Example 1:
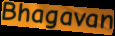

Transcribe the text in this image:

Bhagavan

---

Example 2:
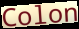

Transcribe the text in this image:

Colon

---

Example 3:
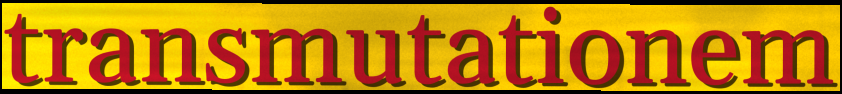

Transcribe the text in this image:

transmutationem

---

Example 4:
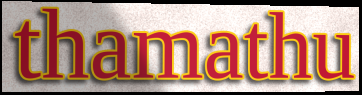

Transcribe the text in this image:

thamathu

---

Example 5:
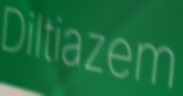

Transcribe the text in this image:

Diltiazem